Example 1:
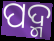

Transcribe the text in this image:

ପଦ୍ମ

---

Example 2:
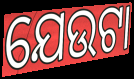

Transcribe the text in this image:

ଯେଉଟା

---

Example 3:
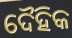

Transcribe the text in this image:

ଦୈହିକ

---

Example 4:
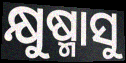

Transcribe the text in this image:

କ୍ଷୁଷ୍ମାସୁ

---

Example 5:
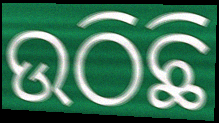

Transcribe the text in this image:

ଉଠିଛି